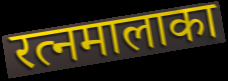
रत्नमालाका